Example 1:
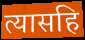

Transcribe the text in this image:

त्यासहि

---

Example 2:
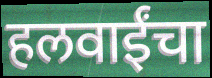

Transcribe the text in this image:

हलवाईंचा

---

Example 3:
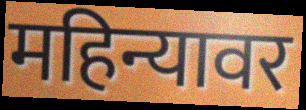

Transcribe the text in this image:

महिन्यावर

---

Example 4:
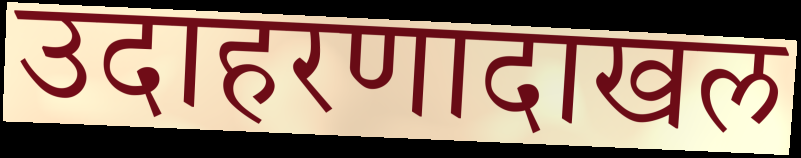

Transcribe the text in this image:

उदाहरणादाखल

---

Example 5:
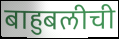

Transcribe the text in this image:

बाहुबलीची